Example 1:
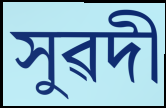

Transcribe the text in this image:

সুৱদী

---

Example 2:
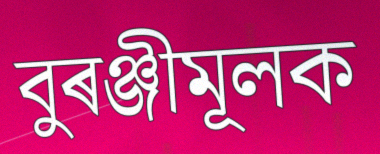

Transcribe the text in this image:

বুৰঞ্জীমূলক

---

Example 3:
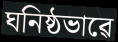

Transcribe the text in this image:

ঘনিষ্ঠভাৱে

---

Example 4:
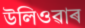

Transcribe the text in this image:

উলিওৱাৰ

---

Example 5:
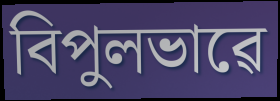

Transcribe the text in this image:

বিপুলভাৱে